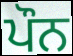
ਪੌਨ